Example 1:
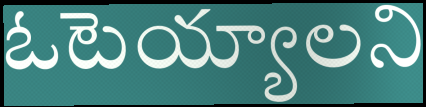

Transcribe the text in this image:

ఓటెయ్యాలని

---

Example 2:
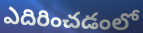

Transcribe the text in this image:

ఎదిరించడంలో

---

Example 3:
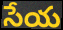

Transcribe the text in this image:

సేయ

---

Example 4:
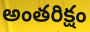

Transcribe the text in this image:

అంతరిక్షం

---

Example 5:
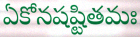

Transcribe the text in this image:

ఏకోనషష్టితమః